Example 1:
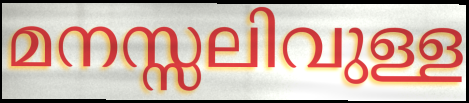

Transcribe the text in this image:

മനസ്സലിവുള്ള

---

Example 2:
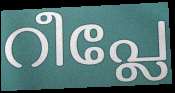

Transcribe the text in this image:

റീപ്ലേ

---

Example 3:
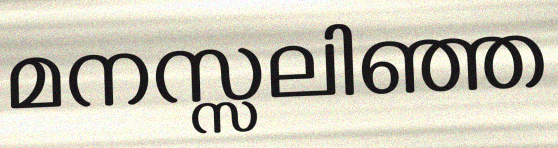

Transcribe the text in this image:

മനസ്സലിഞ്ഞ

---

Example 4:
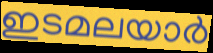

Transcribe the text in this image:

ഇടമലയാർ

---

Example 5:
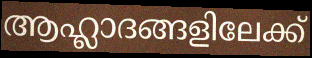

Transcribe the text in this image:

ആഹ്ലാദങ്ങളിലേക്ക്